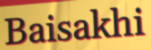
Baisakhi